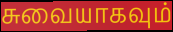
சுவையாகவும்